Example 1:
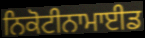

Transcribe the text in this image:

ਨਿਕੋਟੀਨਾਮਾਈਡ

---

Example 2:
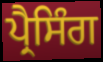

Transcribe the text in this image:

ਪ੍ਰੈਸਿੰਗ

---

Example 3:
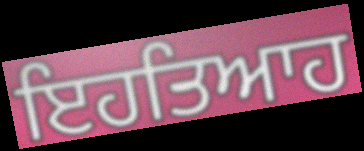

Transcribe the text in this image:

ਇਹਤਿਆਹ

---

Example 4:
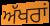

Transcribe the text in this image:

ਅੱਖਰਾਂ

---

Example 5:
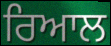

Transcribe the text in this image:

ਰਿਆਲ